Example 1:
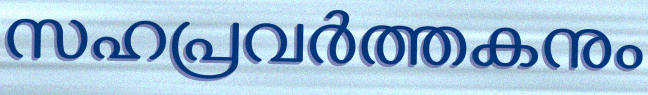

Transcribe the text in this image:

സഹപ്രവർത്തകനും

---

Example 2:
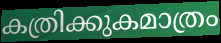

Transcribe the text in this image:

കത്രിക്കുകമാത്രം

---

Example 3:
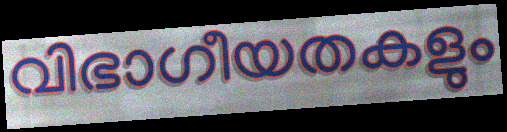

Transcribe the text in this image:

വിഭാഗീയതകളും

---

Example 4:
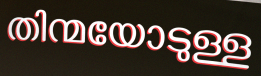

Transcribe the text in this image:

തിന്മയോടുള്ള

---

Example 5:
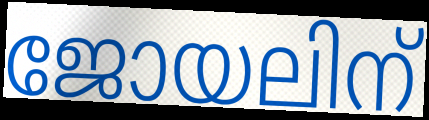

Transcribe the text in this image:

ജോയലിന്